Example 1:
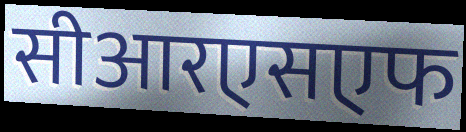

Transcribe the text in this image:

सीआरएसएफ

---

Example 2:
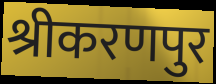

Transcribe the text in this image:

श्रीकरणपुर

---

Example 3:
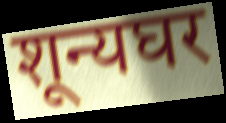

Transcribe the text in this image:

शून्यघर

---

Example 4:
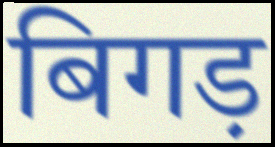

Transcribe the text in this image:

बिगड़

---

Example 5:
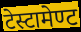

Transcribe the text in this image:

टेस्टामेण्ट